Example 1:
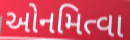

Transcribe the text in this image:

ઓનમિત્વા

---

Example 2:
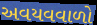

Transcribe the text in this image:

અવયવવાળો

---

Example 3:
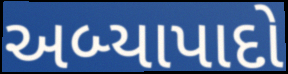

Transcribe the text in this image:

અબ્યાપાદો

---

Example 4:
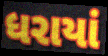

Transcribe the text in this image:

ધરાયાં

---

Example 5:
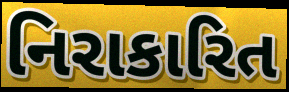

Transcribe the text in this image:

નિરાકારિત